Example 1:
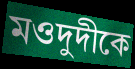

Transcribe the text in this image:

মওদুদীকে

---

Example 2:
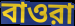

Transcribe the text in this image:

বাওরা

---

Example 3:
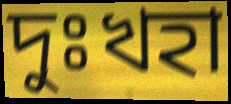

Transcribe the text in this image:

দুঃখহা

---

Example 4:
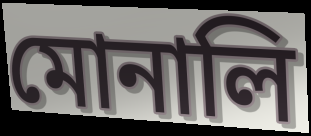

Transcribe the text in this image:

মোনালি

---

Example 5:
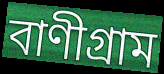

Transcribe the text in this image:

বাণীগ্রাম